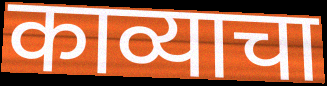
काव्याचा